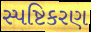
સ્પષ્ટિકરણ